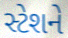
સ્ટેશને